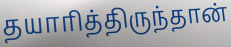
தயாரித்திருந்தான்